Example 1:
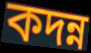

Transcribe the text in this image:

কদন্ন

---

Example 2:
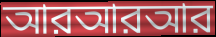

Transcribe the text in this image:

আরআরআর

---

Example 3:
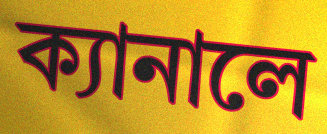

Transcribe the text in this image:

ক্যানালে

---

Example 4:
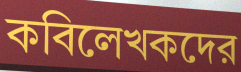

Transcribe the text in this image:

কবিলেখকদের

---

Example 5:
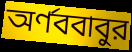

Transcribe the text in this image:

অর্ণববাবুর